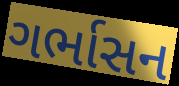
ગર્ભાસન